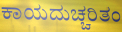
ಕಾಯದುಚ್ಚರಿತಂ